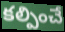
కల్పించే